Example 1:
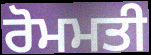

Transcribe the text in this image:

ਰੋਮਮਤੀ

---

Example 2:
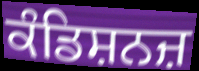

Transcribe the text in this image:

ਕੰਡਿਸ਼ਨਜ਼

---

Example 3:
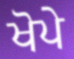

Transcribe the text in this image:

ਖੋਪੇ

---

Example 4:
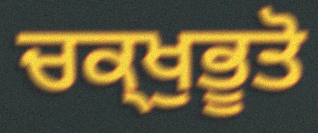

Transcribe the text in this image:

ਚਕ੍ਖੁਭੂਤੋ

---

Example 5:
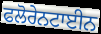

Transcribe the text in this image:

ਫਲੋਰੇਨਟਾਈਨ